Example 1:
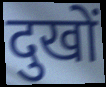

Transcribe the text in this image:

दुखों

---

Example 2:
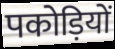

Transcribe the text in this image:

पकोड़ियों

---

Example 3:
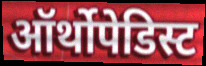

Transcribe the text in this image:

ऑर्थोपेडिस्ट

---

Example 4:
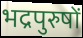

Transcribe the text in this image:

भद्रपुरुषों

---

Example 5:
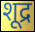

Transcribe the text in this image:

शूद्र